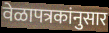
वेळापत्रकांनुसार